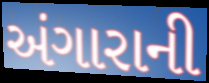
અંગારાની